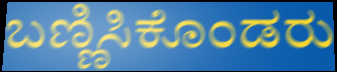
ಬಣ್ಣಿಸಿಕೊಂಡರು